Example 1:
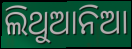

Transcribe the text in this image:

ଲିଥୁଆନିଆ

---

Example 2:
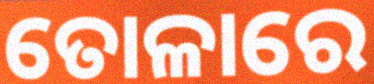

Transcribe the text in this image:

ତୋଳାରେ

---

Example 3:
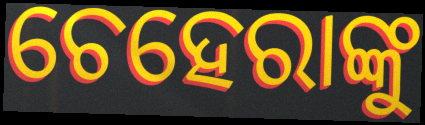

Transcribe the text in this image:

ଚେହେରାଙ୍କୁ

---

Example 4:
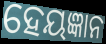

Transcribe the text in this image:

ହେୟଜ୍ଞାନ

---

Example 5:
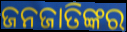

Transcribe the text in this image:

ଜନଜାତିଙ୍କର